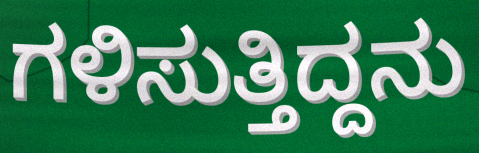
ಗಳಿಸುತ್ತಿದ್ದನು